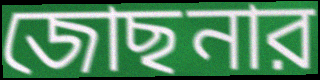
জোছনার